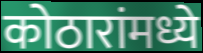
कोठारांमध्ये